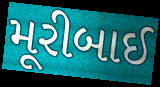
મૂરીબાઈ